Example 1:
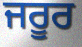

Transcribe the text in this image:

ਜਰੂਰ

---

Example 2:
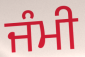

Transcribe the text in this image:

ਜੰਮੀ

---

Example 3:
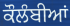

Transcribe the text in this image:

ਕੌਲੰਬੀਆਂ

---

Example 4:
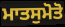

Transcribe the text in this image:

ਮਾਤਸੁਮੋਤੋ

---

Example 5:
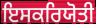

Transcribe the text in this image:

ਇਸਕਰਿਯੋਤੀ